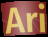
Ari